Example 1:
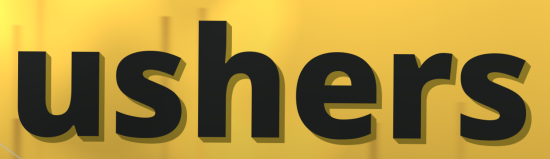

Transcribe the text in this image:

ushers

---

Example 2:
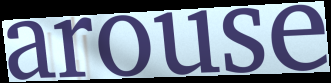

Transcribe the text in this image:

arouse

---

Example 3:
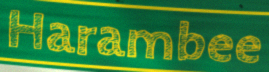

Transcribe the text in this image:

Harambee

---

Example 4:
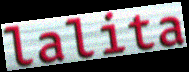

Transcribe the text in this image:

lalita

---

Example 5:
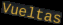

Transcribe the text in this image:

Vueltas